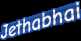
Jethabhai